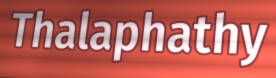
Thalaphathy